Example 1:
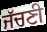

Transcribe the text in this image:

ਜੱਚਣੀ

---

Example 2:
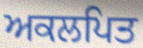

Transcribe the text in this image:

ਅਕਲਪਿਤ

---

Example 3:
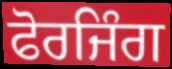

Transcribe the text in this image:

ਫੋਰਜਿੰਗ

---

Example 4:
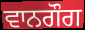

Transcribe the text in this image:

ਵਾਨਗੌਗ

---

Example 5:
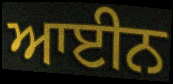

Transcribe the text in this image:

ਆਈਨ